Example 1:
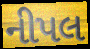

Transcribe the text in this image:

નીપલ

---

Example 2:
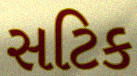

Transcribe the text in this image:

સટિક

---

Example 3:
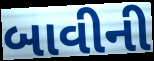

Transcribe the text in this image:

બાવીની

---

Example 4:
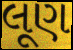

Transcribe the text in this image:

લૂણ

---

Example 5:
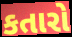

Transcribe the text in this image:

કતારો